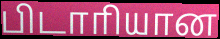
பிடாரியான